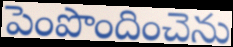
పెంపొందించెను